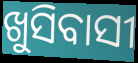
ଖୁସିବାସୀ